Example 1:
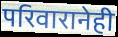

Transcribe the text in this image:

परिवारानेही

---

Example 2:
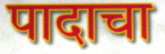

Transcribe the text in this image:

पादाचा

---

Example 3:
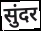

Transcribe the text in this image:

सुंदर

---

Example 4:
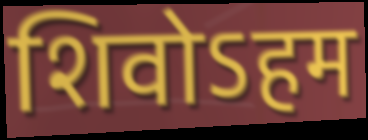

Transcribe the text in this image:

शिवोऽहम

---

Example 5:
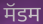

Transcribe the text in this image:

मॅडम